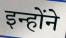
इन्होंने